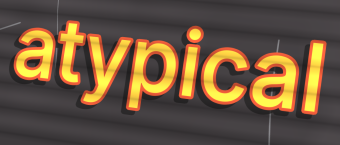
atypical